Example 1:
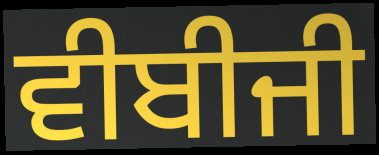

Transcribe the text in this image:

ਵੀਬੀਜੀ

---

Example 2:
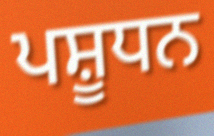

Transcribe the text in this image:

ਪਸ਼ੂਧਨ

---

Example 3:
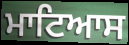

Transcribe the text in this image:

ਮਾਟਿਆਸ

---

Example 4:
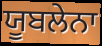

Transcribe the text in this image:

ਯੂਬਲੇਨਾ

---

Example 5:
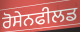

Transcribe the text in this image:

ਰੋਸੇਨਫੀਲਡ